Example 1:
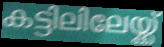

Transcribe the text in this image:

കട്ടിലിലേയ്ക്ക്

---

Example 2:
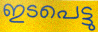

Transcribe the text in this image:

ഇടപെട്ടു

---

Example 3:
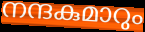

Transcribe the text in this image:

നന്ദകുമാറും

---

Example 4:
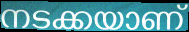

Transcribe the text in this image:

നടക്കയാണ്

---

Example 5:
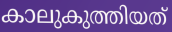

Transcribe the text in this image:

കാലുകുത്തിയത്